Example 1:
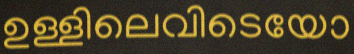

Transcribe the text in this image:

ഉള്ളിലെവിടെയോ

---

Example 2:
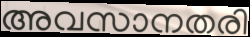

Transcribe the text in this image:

അവസാനതരി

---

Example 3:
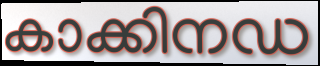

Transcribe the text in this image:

കാക്കിനഡ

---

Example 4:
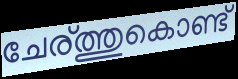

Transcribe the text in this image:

ചേര്ത്തുകൊണ്ട്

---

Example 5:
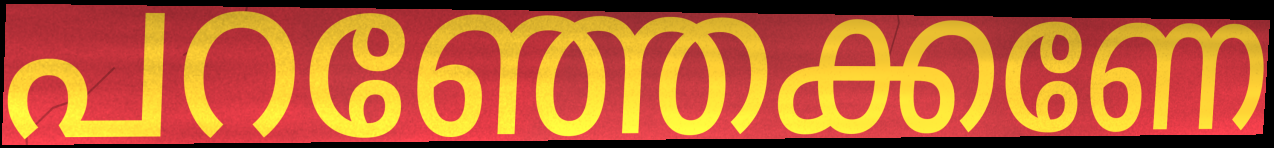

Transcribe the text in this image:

പറഞ്ഞേക്കണേ